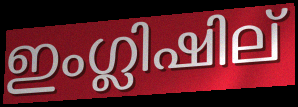
ഇംഗ്ലിഷില്